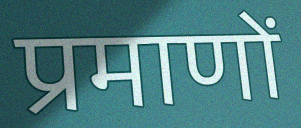
प्रमाणों